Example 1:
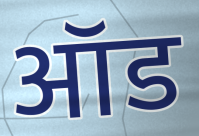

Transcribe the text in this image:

ऑड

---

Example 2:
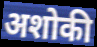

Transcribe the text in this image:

अशोकी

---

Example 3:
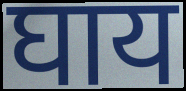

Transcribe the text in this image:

घाय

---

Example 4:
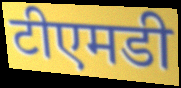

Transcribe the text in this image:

टीएमडी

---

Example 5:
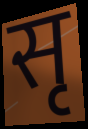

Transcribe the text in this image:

सृ